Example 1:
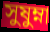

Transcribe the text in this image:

সুষুম্না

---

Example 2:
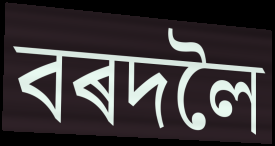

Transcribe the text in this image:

বৰদলৈ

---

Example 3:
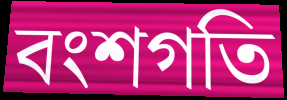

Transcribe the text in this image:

বংশগতি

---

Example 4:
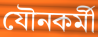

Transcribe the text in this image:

যৌনকৰ্মী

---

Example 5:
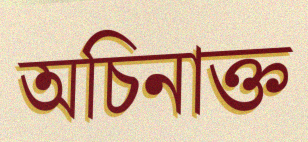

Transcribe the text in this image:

অচিনাক্ত